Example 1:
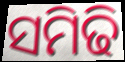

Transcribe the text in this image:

ସମିଢି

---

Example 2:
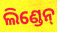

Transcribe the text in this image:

ଲିଣ୍ଡେନ୍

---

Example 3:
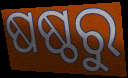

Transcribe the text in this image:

ଷଷ୍ଠରୁ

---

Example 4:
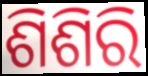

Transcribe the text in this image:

ଶିଶିରି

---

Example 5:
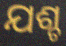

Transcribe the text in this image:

ଯଶ୍ଚ